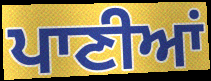
ਪਾਣੀਆਂ